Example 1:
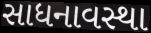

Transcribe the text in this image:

સાધનાવસ્થા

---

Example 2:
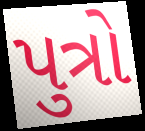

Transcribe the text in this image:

પુત્રો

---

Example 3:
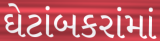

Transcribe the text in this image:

ઘેટાંબકરાંમાં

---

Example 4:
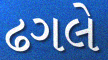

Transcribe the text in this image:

ઢગલે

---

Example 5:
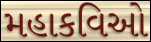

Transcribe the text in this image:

મહાકવિઓ